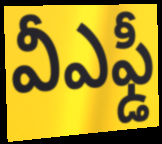
వీఎఫ్డీ